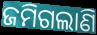
ଜମିଗଲାଣି